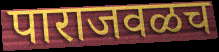
पाराजवळच